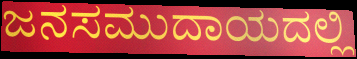
ಜನಸಮುದಾಯದಲ್ಲಿ